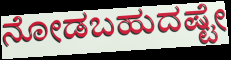
ನೋಡಬಹುದಷ್ಟೇ